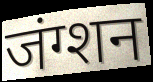
जंग्शन